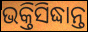
ଭକ୍ତିସିଦ୍ଧାନ୍ତ